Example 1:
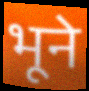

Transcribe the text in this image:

भूने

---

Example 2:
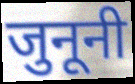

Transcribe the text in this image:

जुनूनी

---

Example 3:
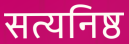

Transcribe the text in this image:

सत्यनिष्ठ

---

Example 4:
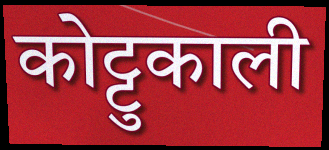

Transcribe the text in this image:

कोट्टुकाली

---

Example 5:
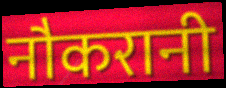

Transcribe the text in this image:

नौकरानी